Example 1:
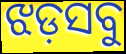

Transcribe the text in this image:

ଝଡ଼ସବୁ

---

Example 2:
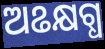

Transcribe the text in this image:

ଅଌକ୍ଷଗ୍ଧ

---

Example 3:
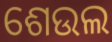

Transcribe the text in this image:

ଶେଉଲ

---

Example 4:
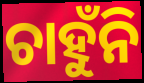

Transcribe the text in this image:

ଚାହୁଁନି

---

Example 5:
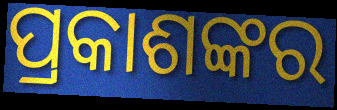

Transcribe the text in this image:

ପ୍ରକାଶଙ୍କର